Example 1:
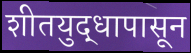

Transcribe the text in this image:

शीतयुद्धापासून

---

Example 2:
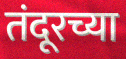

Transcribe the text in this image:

तंदूरच्या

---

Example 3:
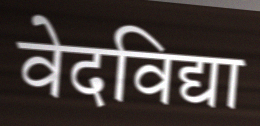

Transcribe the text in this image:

वेदविद्या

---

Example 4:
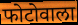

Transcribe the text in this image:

फोटोवाला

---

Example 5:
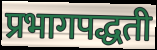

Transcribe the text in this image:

प्रभागपद्धती